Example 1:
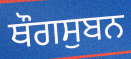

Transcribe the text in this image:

ਥੌਗਸੁਬਨ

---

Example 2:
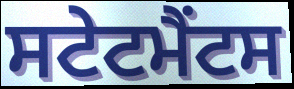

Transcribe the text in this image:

ਸਟੇਟਮੈਂਟਸ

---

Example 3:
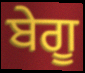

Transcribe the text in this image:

ਬੇਗੂ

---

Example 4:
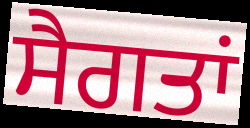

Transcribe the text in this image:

ਸੈਗਤਾਂ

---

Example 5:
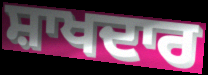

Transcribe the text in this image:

ਸ਼ਾਖਦਾਰ